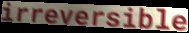
irreversible